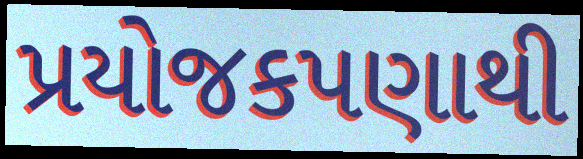
પ્રયોજકપણાથી